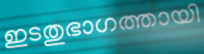
ഇടതുഭാഗത്തായി